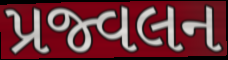
પ્રજ્વલન